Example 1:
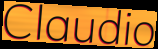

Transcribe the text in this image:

Claudio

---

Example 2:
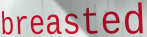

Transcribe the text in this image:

breasted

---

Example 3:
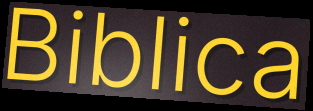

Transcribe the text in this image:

Biblica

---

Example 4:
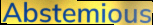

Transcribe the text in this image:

Abstemious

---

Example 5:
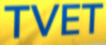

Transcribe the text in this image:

TVET